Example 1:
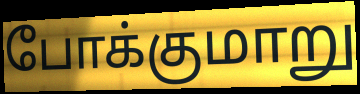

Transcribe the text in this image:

போக்குமாறு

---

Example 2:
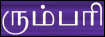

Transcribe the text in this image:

ரும்பரி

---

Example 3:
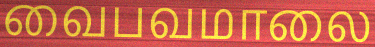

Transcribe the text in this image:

வைபவமாலை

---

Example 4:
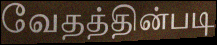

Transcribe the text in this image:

வேதத்தின்படி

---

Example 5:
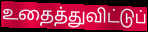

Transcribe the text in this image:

உதைத்துவிட்டுப்